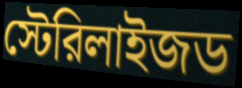
স্টেরিলাইজড